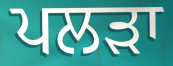
ਪਲੜਾ